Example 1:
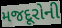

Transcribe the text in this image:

મજદૂરોની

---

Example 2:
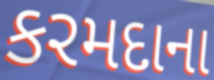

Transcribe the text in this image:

કરમદાના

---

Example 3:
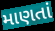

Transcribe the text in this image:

માણતાં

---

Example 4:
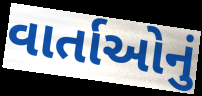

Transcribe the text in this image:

વાર્તાઓનું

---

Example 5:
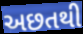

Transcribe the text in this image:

અછતથી